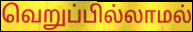
வெறுப்பில்லாமல்